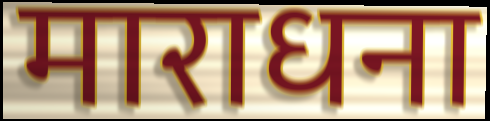
माराधना